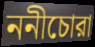
ননীচোরা